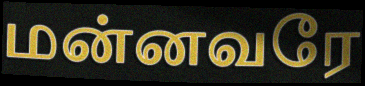
மன்னவரே